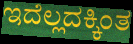
ಇದೆಲ್ಲದಕ್ಕಿಂತ